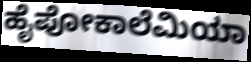
ಹೈಪೋಕಾಲೆಮಿಯಾ